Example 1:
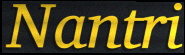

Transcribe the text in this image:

Nantri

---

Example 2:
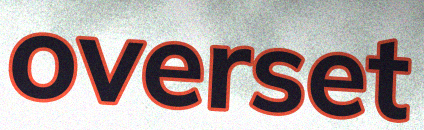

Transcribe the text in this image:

overset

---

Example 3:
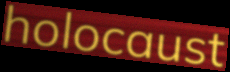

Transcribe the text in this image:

holocaust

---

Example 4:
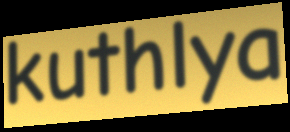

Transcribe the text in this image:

kuthlya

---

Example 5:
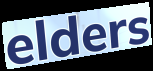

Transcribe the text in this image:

elders